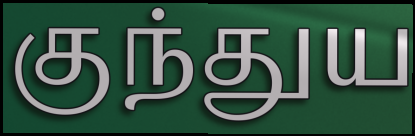
குந்துய